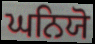
ਘਨਿਯੋ